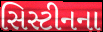
સિસ્ટીનના